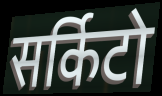
सर्किटो